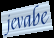
jevabe